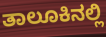
ತಾಲೂಕಿನಲ್ಲಿ